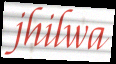
jhilwa